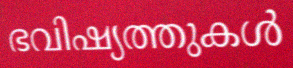
ഭവിഷ്യത്തുകൾ